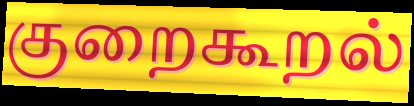
குறைகூறல்